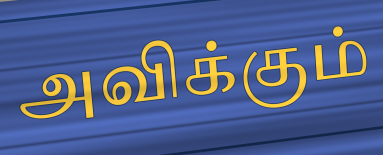
அவிக்கும்